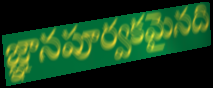
జ్ఞానపూర్వకమైనది